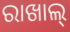
ରାଖାଲ୍